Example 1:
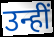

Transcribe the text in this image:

उन्हीं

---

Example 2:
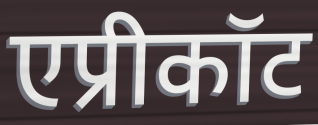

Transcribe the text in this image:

एप्रीकॉट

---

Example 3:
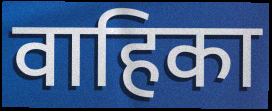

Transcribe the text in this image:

वाहिका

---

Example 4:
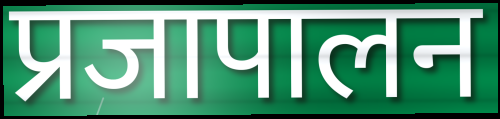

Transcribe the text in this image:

प्रजापालन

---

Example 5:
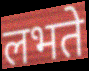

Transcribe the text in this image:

लभते